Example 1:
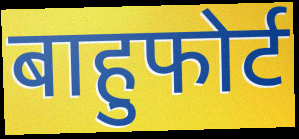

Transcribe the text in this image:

बाहुफोर्ट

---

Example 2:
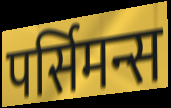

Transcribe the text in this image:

पर्सिमन्स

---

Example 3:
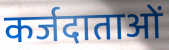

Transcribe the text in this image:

कर्जदाताओं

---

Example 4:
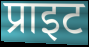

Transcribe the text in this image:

प्राइट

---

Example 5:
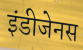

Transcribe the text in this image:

इंडीजेनस